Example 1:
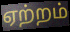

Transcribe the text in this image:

ஏற்றம்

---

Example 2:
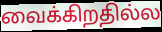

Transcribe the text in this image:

வைக்கிறதில்ல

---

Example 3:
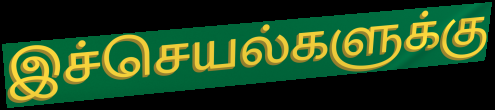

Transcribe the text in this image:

இச்செயல்களுக்கு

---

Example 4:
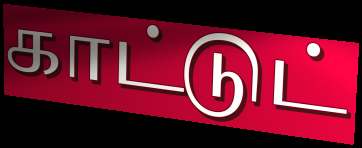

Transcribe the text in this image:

காட்டுட்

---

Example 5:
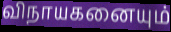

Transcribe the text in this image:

விநாயகனையும்